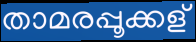
താമരപ്പൂക്കള്